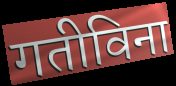
गतीविना